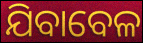
ଯିବାବେଳ